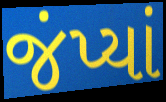
જંપ્યાં